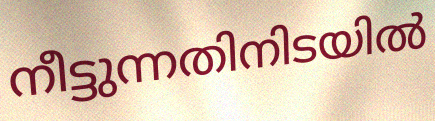
നീട്ടുന്നതിനിടയിൽ